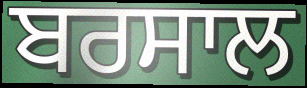
ਬਰਸਾਲ